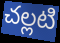
చల్లటి